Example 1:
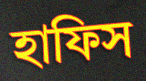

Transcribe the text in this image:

হাফিস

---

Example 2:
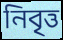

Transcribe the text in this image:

নিবৃত্ত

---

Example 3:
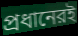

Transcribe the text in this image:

প্রধানেরই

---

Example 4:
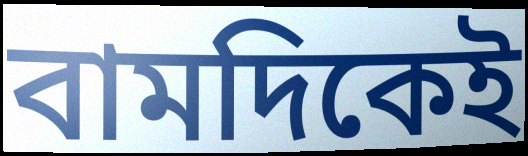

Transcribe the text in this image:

বামদিকেই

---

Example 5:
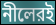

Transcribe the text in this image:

নীলেরই